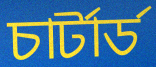
চার্টার্ড